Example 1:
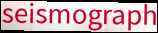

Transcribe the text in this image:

seismograph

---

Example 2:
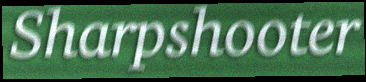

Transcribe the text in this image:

Sharpshooter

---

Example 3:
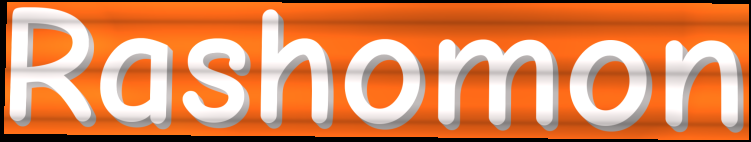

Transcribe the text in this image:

Rashomon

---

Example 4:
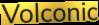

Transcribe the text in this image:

Volconic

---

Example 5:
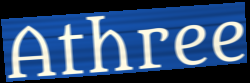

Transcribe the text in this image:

Athree